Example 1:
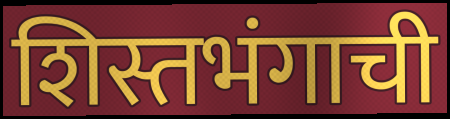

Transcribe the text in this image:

शिस्तभंगाची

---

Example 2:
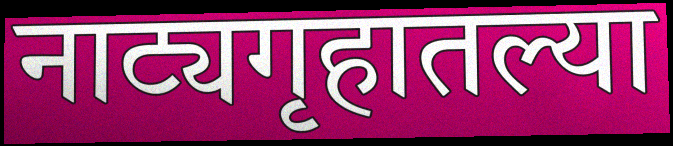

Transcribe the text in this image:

नाट्यगृहातल्या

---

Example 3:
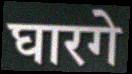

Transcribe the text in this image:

घारगे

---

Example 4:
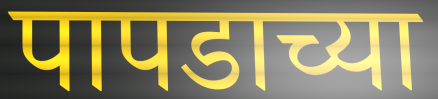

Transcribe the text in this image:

पापडाच्या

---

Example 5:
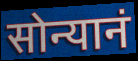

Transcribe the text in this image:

सोन्यानं